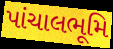
પાંચાલભૂમિ